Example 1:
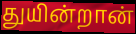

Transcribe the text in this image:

துயின்றான்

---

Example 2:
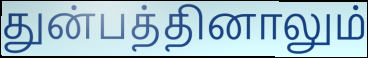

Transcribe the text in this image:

துன்பத்தினாலும்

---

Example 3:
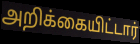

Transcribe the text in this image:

அறிக்கையிட்டார்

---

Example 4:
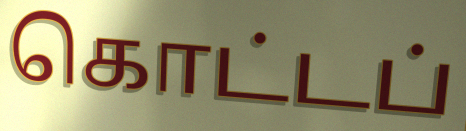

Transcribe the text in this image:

கொட்டப்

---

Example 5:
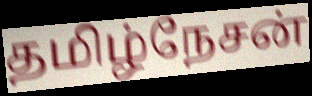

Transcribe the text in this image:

தமிழ்நேசன்